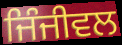
ਜਿੰਜੀਵਲ